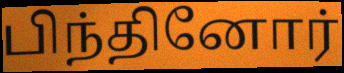
பிந்தினோர்